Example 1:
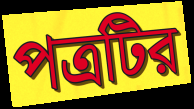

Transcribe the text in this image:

পত্রটির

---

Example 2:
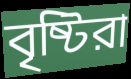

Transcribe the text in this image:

বৃষ্টিরা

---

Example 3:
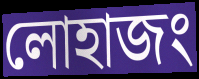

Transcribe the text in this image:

লোহাজং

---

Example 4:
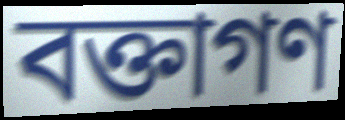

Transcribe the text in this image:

বক্তাগণ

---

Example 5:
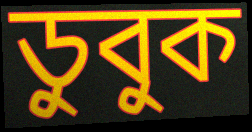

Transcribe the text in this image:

ডুবুক